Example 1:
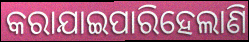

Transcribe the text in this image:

କରାଯାଇପାରିହେଲାଣି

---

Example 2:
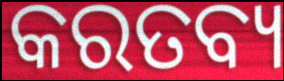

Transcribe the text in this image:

କରତବ୍ୟ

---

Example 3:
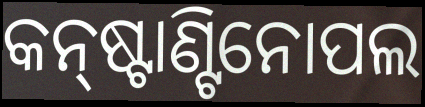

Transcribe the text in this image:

କନ୍‌ଷ୍ଟାଣ୍ଟିନୋପଲ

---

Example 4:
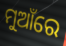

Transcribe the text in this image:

ମୁଆଁରେ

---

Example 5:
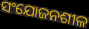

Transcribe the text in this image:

ସଂଯୋଜନଶୀଳ